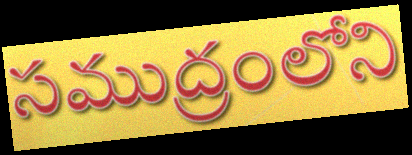
సముద్రంలోని